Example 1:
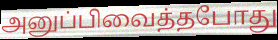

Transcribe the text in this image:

அனுப்பிவைத்தபோது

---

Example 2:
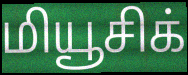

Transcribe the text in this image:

மியூசிக்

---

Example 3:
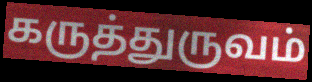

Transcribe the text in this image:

கருத்துருவம்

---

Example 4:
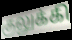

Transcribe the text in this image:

குலுக்கி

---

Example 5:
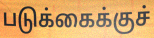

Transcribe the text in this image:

படுக்கைக்குச்